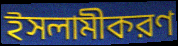
ইসলামীকরণ